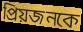
প্রিয়জনকে